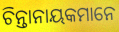
ଚିନ୍ତାନାୟକମାନେ